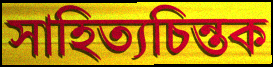
সাহিত্যচিন্তক